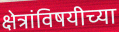
क्षेत्रांविषयीच्या